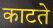
काटते